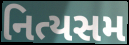
નિત્યસમ